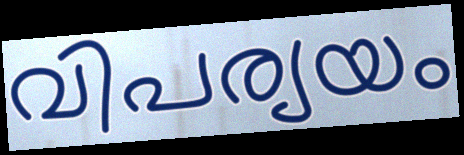
വിപര്യയം